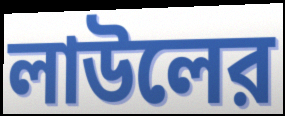
লাউলের